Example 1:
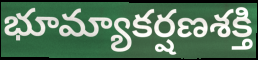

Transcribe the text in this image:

భూమ్యాకర్షణశక్తి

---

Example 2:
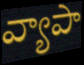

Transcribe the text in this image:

వ్యాపా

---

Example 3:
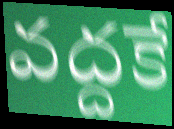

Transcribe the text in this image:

వద్దకే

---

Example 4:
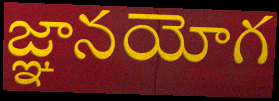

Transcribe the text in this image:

జ్ఞానయోగ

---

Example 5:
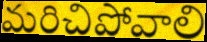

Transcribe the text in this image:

మరిచిపోవాలి